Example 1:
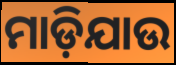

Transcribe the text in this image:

ମାଡ଼ିଯାଉ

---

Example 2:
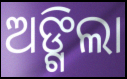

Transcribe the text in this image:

ଅଙ୍ଗିଲା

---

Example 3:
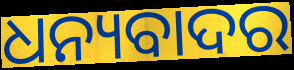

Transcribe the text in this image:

ଧନ୍ୟବାଦର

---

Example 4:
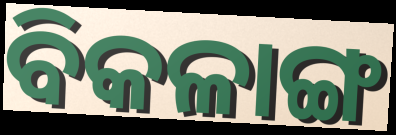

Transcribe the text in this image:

ବିକଳାଙ୍ଗ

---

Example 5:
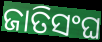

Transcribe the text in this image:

ଜାତିସଂଘ